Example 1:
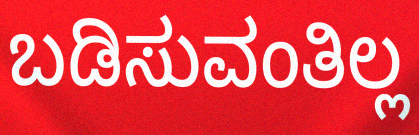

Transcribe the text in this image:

ಬಡಿಸುವಂತಿಲ್ಲ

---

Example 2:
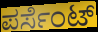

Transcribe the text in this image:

ಪರ್ಸೆಂಟ್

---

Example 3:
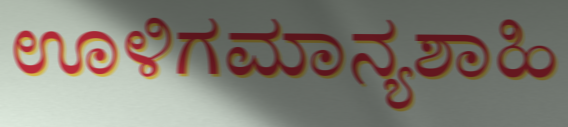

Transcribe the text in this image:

ಊಳಿಗಮಾನ್ಯಶಾಹಿ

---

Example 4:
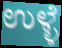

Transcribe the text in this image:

ಉಳ್ಳೆ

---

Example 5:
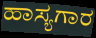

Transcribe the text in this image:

ಹಾಸ್ಯಗಾರ